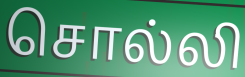
சொல்லி